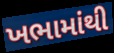
ખભામાંથી